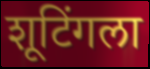
शूटिंगला